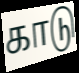
காடு